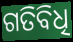
ଗତିବିଧି